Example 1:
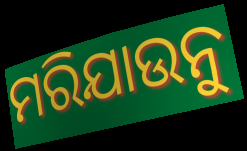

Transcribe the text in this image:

ମରିଯାଉନୁ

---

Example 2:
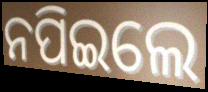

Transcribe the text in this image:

ନପିଇଲେ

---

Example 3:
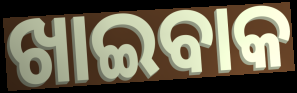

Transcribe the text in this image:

ଖାଇବାକ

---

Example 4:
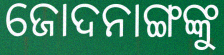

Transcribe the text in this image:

ଜୋଦନାଙ୍ଗଙ୍କୁ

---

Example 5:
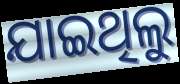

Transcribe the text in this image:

ଯାଇଥିଲୁ